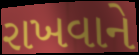
રાખવાને